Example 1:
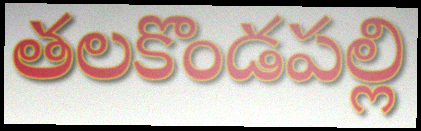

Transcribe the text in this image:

తలకొండపల్లి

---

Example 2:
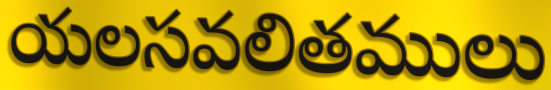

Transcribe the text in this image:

యలసవలితములు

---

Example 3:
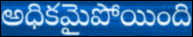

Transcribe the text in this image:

అధికమైపోయింది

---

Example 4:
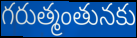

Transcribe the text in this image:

గరుత్మంతునకు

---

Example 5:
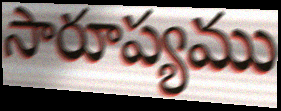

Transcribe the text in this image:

సారూప్యము